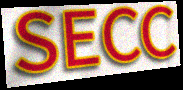
SECC